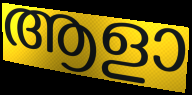
ആളാ